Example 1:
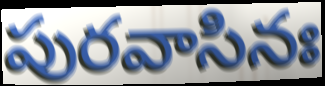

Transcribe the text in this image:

పురవాసినః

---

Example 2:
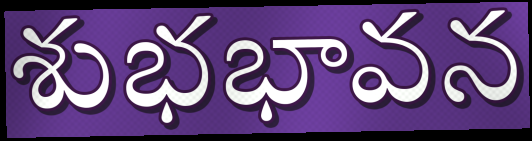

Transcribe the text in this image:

శుభభావన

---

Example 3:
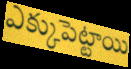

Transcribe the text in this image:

ఎక్కుపెట్టాయి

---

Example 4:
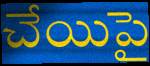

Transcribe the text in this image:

చేయిపై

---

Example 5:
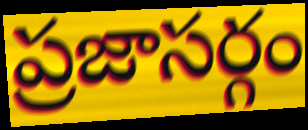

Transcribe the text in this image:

ప్రజాసర్గం